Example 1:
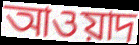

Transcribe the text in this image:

আওয়াদ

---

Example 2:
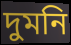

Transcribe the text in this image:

দুমনি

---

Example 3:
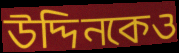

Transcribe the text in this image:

উদ্দিনকেও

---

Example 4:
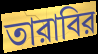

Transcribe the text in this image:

তারাবির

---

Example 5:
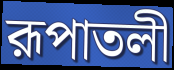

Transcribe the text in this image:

রূপাতলী